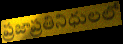
ప్రజాప్రతినిధులలో